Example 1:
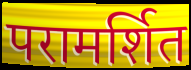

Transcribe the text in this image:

परामर्शित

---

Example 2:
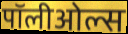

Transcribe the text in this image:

पॉलीओल्स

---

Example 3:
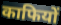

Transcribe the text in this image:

काफियों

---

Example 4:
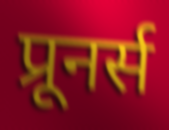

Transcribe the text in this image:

प्रूनर्स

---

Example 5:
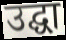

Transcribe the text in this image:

उद्घा